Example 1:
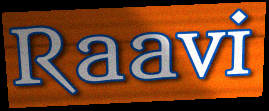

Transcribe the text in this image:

Raavi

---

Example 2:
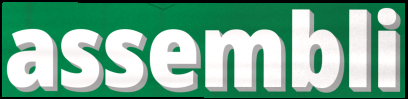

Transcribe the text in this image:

assembli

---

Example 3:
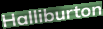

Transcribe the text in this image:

Halliburton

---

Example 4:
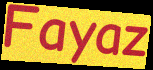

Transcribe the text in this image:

Fayaz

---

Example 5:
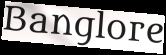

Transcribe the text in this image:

Banglore